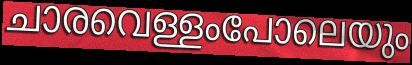
ചാരവെള്ളംപോലെയും